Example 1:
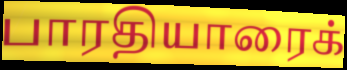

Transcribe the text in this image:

பாரதியாரைக்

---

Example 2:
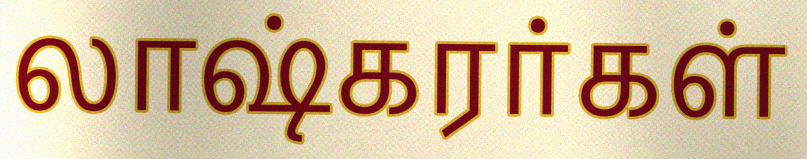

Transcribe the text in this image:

லாஷ்கரர்கள்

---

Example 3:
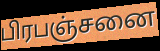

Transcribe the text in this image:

பிரபஞ்சனை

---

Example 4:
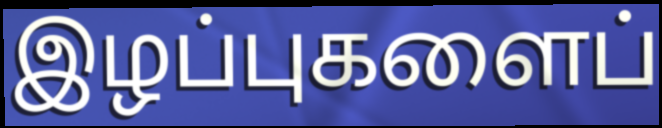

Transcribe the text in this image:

இழப்புகளைப்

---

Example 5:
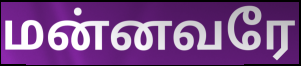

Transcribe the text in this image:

மன்னவரே